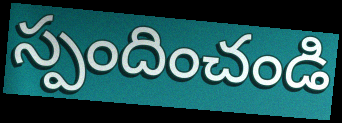
స్పందించండి